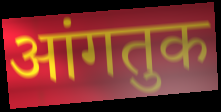
आंगतुक